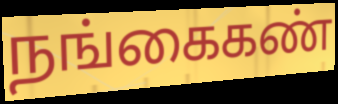
நங்கைகண்